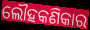
ଲୌହକଣିକାର